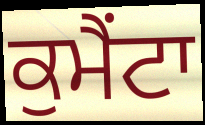
ਕੁਮੈਂਟਾ